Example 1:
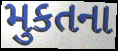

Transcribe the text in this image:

મુકતના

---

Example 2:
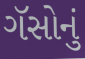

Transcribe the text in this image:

ગૅસોનું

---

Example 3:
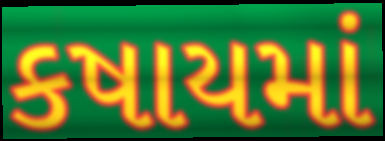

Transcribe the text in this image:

કષાયમાં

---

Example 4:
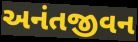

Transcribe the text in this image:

અનંતજીવન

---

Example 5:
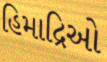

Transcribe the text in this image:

હિમાદ્રિઓ